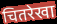
चितरेखा